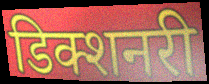
डिक्शनरी